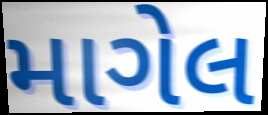
માગેલ